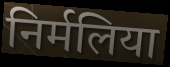
निर्मलिया